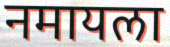
नमायला